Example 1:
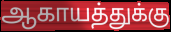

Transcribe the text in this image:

ஆகாயத்துக்கு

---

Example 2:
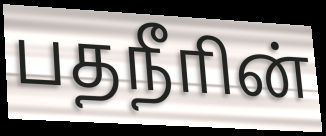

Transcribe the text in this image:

பதநீரின்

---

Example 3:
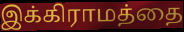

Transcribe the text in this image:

இக்கிராமத்தை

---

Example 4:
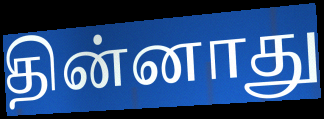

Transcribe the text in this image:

தின்னாது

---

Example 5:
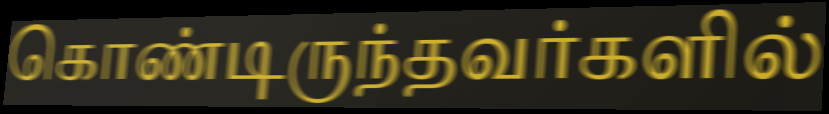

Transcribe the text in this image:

கொண்டிருந்தவர்களில்